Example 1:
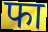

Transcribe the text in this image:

फा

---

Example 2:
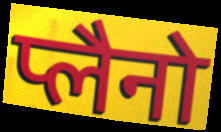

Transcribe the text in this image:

प्लैनो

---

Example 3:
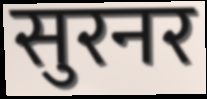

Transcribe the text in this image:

सुरनर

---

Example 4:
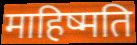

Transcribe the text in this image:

माहिष्मति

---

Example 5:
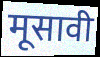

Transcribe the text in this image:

मूसावी